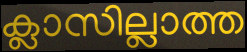
ക്ലാസില്ലാത്ത